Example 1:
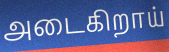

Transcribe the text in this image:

அடைகிறாய்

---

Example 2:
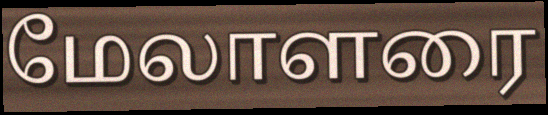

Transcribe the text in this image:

மேலாளரை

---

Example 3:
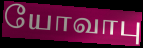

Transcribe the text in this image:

யோவாபு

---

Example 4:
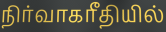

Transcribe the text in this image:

நிர்வாகரீதியில்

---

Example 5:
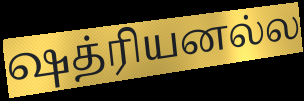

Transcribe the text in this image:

ஷத்ரியனல்ல